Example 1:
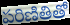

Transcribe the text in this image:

పరిణితితో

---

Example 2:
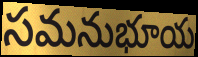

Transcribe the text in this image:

సమనుభూయ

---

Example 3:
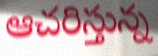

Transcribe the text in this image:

ఆచరిస్తున్న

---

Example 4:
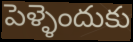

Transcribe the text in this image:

పెళ్ళెందుకు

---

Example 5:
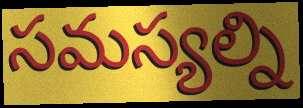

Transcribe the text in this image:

సమస్యల్ని